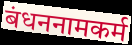
बंधननामकर्म